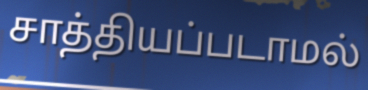
சாத்தியப்படாமல்